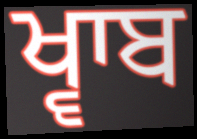
ਖ੍ਵਾਬ